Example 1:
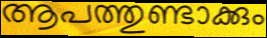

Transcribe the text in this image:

ആപത്തുണ്ടാക്കും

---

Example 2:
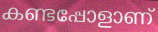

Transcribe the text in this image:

കണ്ടപ്പോളാണ്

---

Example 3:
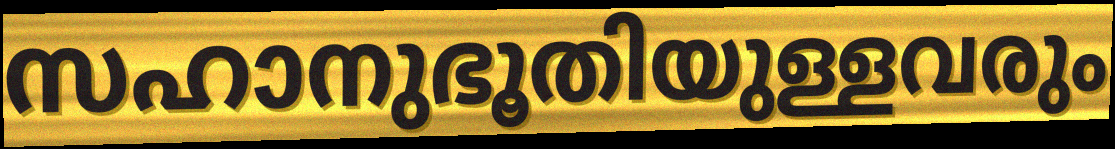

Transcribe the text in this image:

സഹാനുഭൂതിയുള്ളവരും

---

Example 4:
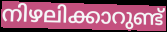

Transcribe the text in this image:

നിഴലിക്കാറുണ്ട്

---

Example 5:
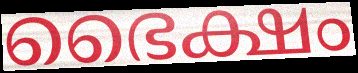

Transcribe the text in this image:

ഭൈക്ഷം